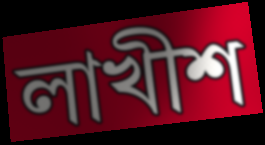
লাখীশ